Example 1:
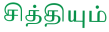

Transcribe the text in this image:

சித்தியும்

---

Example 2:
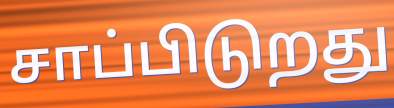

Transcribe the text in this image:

சாப்பிடுறது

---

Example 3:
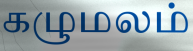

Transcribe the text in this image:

கழுமலம்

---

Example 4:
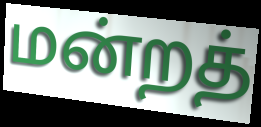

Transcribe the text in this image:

மன்றத்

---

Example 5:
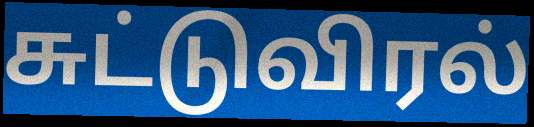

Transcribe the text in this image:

சுட்டுவிரல்